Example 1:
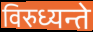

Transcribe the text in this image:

विरुध्यन्ते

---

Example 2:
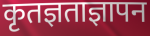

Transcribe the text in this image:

कृतज्ञताज्ञापन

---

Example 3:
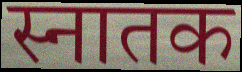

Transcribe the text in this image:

स्नातक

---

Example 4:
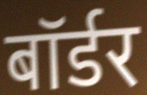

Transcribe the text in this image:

बॉर्डर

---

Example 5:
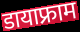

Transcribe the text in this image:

डायाफ्राम